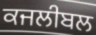
ਕਜਲੀਬਲ